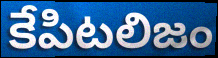
కేపిటలిజం